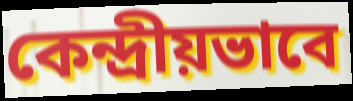
কেন্দ্রীয়ভাবে